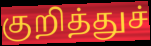
குறித்துச்